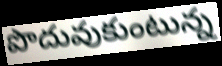
పొదువుకుంటున్న